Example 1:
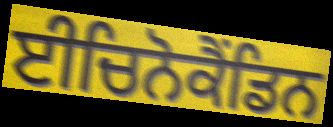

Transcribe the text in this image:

ਈਚਿਨੋਕੈਂਡਿਨ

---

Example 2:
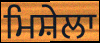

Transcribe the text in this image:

ਮਿਸ਼ੇਲਾ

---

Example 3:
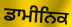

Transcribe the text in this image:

ਡਾਮੀਨਿਕ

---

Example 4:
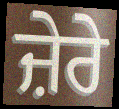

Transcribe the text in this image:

ਜ਼ੇਰੇ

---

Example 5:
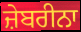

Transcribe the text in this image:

ਜ਼ੇਬਰੀਨਾ